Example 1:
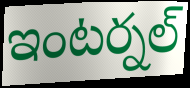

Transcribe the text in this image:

ఇంటర్నల్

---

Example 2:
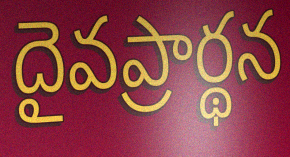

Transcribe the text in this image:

దైవప్రార్థన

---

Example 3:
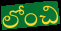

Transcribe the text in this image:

లోంచి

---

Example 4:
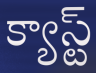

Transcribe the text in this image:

క్యాస్ట్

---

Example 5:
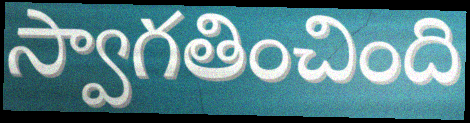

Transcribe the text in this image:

స్వాగతించింది